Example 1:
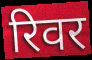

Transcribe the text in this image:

रिवर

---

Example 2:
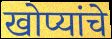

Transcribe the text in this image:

खोप्यांचे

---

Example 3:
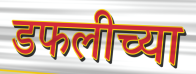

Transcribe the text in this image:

डफलीच्या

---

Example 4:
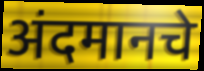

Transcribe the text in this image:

अंदमानचे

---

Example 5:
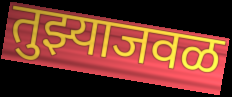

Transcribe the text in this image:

तुझ्याजवळ